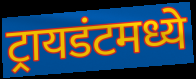
ट्रायडंटमध्ये